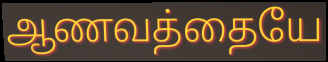
ஆணவத்தையே